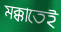
মক্কাতেই